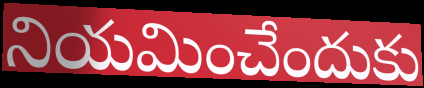
నియమించేందుకు